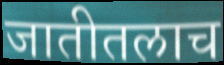
जातीतलाच